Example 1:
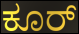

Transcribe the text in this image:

ಕೂರ್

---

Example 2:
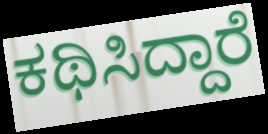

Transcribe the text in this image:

ಕಥಿಸಿದ್ದಾರೆ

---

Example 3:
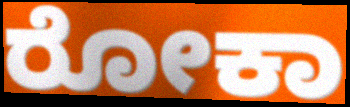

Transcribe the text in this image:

ರೋಕಾ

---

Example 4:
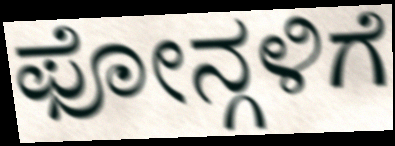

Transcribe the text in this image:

ಫೋನ್ಗಳಿಗೆ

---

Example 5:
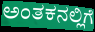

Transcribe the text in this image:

ಅಂತಕನಲ್ಲಿಗೆ